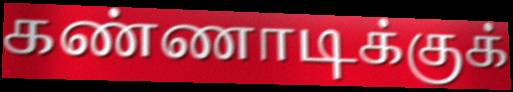
கண்ணாடிக்குக்